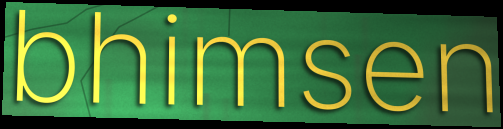
bhimsen